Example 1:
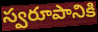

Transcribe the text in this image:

స్వరూపానికి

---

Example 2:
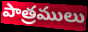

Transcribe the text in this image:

పాత్రములు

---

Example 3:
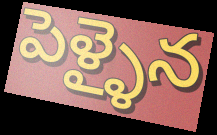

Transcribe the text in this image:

పెళ్ళైన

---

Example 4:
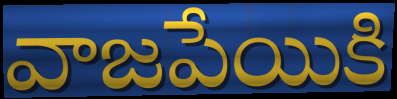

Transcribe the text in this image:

వాజపేయికి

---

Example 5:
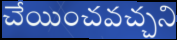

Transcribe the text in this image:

చేయించవచ్చని